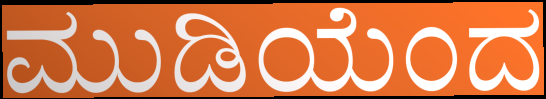
ಮುಡಿಯೆಂದ